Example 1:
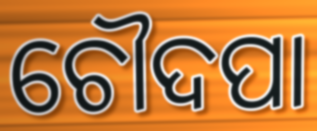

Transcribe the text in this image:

ଚୌଦପା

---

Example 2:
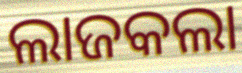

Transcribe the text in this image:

ଲାଜକଲା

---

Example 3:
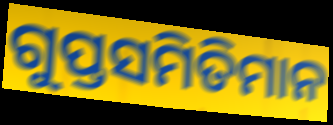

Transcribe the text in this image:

ଗୁପ୍ତସମିତିମାନ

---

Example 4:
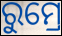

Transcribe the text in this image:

ରୁମ୍ରେ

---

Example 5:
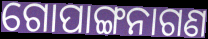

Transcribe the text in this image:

ଗୋପାଙ୍ଗନାଗଣ